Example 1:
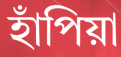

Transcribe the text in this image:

হাঁপিয়া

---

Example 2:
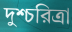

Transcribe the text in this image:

দুশ্চরিত্রা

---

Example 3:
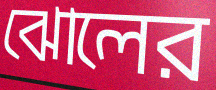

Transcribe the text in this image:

ঝোলের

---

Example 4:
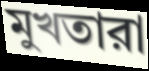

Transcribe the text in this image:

মুখতারা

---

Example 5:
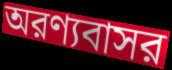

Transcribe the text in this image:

অরণ্যবাসর